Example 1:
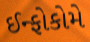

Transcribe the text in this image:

ઈન્ફોકોમે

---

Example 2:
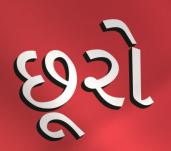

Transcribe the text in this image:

છૂરો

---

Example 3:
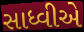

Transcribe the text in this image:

સાધ્વીએ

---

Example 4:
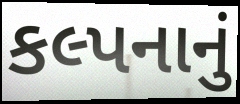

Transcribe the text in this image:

કલ્પનાનું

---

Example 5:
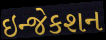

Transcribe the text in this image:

ઇન્જેકશન